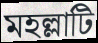
মহল্লাটি